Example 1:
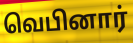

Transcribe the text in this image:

வெபினார்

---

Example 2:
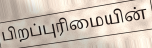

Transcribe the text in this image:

பிறப்புரிமையின்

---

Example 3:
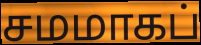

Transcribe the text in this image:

சமமாகப்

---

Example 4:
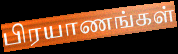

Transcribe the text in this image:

பிரயாணங்கள்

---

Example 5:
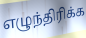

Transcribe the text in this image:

எழுந்திரிக்க